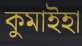
কুমাইহা